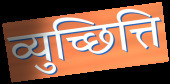
व्युच्छित्ति